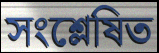
সংশ্লেষিত